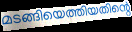
മടങ്ങിയെത്തിയതിന്റെ